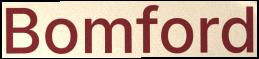
Bomford